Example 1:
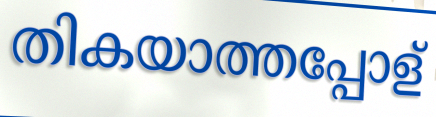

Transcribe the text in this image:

തികയാത്തപ്പോള്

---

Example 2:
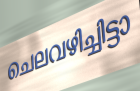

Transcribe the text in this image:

ചെലവഴിച്ചിട്ടാ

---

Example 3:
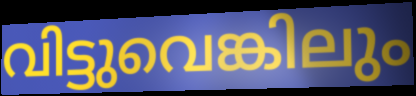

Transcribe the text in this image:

വിട്ടുവെങ്കിലും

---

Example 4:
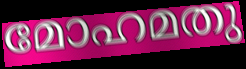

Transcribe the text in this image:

മോഹമതു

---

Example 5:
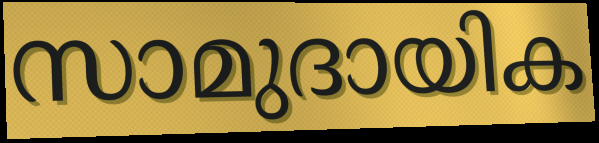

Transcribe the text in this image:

സാമുദായിക